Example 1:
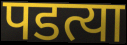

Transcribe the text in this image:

पडत्या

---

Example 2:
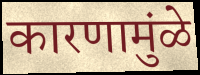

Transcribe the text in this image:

कारणामुंळे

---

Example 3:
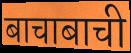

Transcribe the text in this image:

बाचाबाची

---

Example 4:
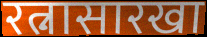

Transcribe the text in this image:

रत्नासारखा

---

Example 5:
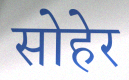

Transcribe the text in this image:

सोहेर